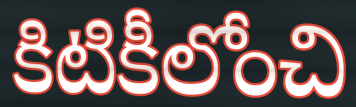
కిటికీలోంచి